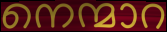
നെന്മാറ